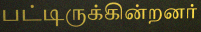
பட்டிருக்கின்றனர்